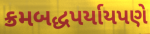
ક્રમબદ્ધપર્યાયપણે